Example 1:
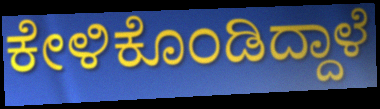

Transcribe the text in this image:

ಕೇಳಿಕೊಂಡಿದ್ದಾಳೆ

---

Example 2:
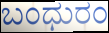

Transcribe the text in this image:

ಬಂಧುರಂ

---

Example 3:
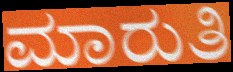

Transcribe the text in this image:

ಮಾರುತಿ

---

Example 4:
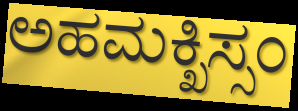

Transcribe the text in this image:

ಅಹಮಕ್ಖಿಸ್ಸಂ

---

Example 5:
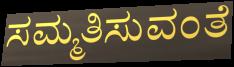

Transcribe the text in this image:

ಸಮ್ಮತಿಸುವಂತೆ